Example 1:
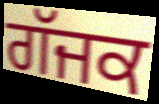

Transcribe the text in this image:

ਗੱਜਕ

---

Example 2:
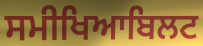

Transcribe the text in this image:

ਸਮੀਖਿਆਬਿਲਟ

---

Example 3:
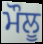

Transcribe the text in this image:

ਮੌਲੂ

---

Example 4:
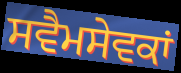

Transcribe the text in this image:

ਸਵੈਮਸੇਵਕਾਂ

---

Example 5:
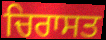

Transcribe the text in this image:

ਚਿਰਾਸਤ